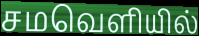
சமவெளியில்